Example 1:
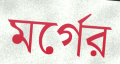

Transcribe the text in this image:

মর্গের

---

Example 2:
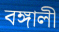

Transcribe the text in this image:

বঙ্গালী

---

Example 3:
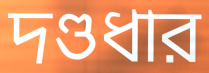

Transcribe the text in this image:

দণ্ডধার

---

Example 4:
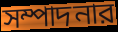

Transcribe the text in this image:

সম্পাদনার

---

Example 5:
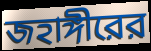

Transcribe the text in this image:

জহাঙ্গীরের